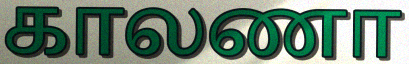
காலணா